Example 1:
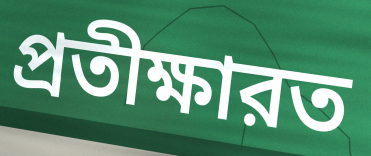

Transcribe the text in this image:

প্রতীক্ষারত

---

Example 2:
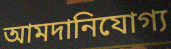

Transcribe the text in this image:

আমদানিযোগ্য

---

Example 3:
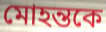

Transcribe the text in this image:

মোহন্তকে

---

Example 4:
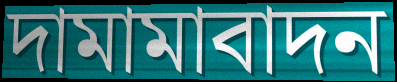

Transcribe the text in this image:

দামামাবাদন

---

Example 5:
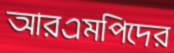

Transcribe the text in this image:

আরএমপিদের